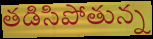
తడిసిపోతున్న